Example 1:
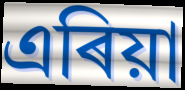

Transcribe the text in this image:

এৰিয়া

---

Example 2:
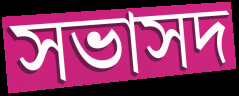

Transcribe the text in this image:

সভাসদ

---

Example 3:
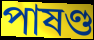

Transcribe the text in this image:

পাষণ্ড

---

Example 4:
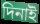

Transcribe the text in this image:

দিনাই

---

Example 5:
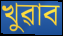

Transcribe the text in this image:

খুৱাব